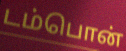
டம்பொன்